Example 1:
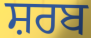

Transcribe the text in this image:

ਸ਼ਰਬ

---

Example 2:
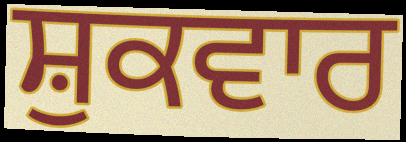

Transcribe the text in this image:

ਸ਼ੁਕਵਾਰ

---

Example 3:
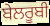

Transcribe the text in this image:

ਬੇਲਰੂਬੀ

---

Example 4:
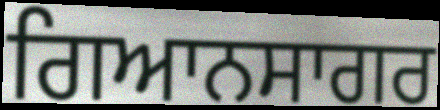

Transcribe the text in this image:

ਗਿਆਨਸਾਗਰ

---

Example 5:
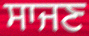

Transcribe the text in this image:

ਸਾਜਣ